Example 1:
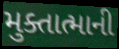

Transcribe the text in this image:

મુક્તાત્માની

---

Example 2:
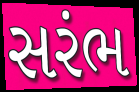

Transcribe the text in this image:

સરંભ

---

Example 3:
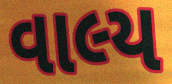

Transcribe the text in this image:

વાલ્ય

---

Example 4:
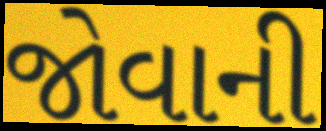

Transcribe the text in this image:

જોવાની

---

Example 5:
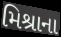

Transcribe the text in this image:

મિશ્રાના